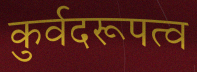
कुर्वदरूपत्व